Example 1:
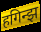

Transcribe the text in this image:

हगिन्झ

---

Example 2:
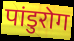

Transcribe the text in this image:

पांडुरोग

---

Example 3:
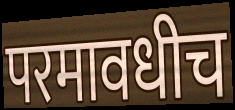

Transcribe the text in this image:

परमावधीच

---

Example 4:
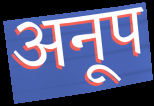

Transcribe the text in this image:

अनूप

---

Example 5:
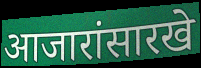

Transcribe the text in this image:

आजारांसारखे